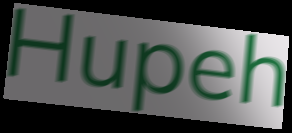
Hupeh